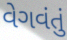
વેગવંતું